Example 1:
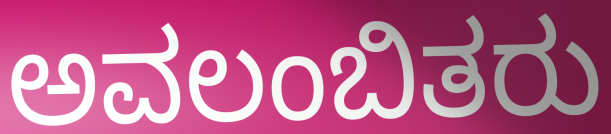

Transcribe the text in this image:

ಅವಲಂಬಿತರು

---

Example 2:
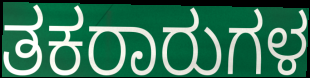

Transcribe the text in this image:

ತಕರಾರುಗಳ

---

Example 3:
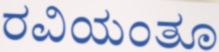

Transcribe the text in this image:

ರವಿಯಂತೂ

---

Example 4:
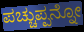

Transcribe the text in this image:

ಪಚ್ಚುಪ್ಪನ್ನೋ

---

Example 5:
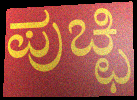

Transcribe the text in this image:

ಪುಚ್ಛಿ